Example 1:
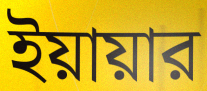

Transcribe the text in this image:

ইয়ায়ার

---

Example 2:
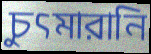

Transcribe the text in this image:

চুৎমারানি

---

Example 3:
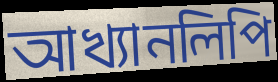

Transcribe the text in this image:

আখ্যানলিপি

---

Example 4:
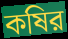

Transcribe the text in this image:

কষির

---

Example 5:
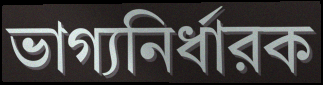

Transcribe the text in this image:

ভাগ্যনির্ধারক